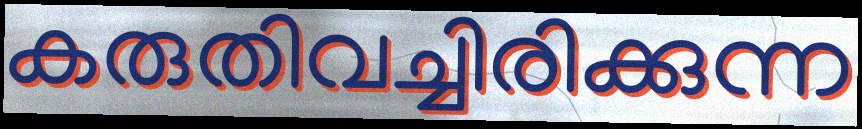
കരുതിവച്ചിരിക്കുന്ന